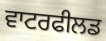
ਵਾਟਰਫੀਲਡ